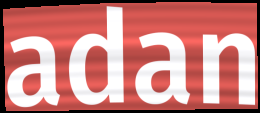
adan